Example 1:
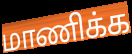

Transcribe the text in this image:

மாணிக்க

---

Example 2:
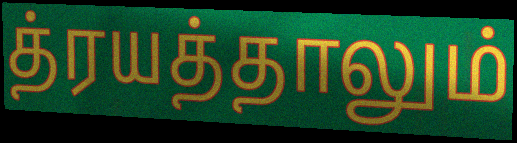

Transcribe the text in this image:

த்ரயத்தாலும்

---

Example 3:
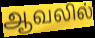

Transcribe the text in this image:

ஆவலில்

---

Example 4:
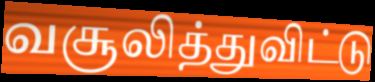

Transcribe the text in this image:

வசூலித்துவிட்டு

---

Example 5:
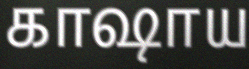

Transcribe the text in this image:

காஷாய